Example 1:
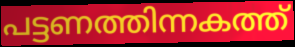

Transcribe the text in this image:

പട്ടണത്തിന്നകത്ത്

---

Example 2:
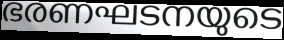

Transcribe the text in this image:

ഭരണഘടനയുടെ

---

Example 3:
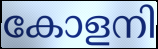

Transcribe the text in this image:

കോളനി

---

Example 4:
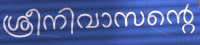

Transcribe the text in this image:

ശ്രീനിവാസന്റെ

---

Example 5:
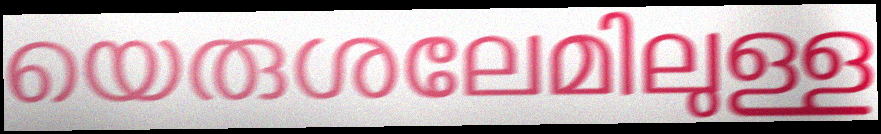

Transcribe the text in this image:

യെരുശലേമിലുള്ള